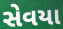
સેવયા